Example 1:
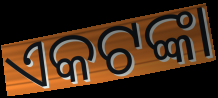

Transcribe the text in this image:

ଏକଟଙ୍କା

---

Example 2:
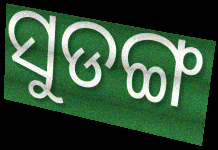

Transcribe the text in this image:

ସୁଡଙ୍ଗ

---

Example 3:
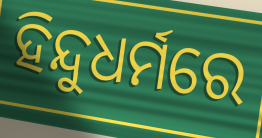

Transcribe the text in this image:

ହିନ୍ଦୁଧର୍ମରେ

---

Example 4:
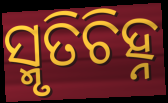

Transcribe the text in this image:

ସ୍ମୃତିଚିହ୍ନ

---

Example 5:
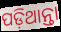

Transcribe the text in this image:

ପଡ଼ିଥାନ୍ତା